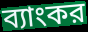
ব্যাংকর